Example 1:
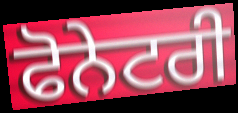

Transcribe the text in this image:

ਫੋਨੇਟਰੀ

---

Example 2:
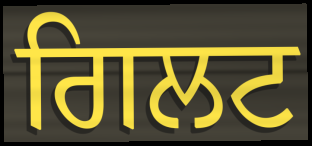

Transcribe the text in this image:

ਗਿਲਟ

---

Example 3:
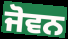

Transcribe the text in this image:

ਜੋਵਨ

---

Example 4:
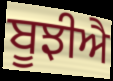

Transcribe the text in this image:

ਬੂਝੀਐ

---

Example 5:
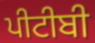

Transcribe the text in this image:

ਪੀਟੀਬੀ